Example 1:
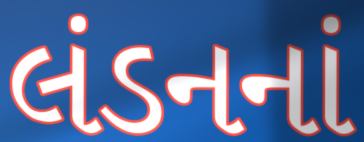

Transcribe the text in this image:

લંડનનાં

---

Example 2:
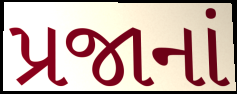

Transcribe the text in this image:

પ્રજાનાં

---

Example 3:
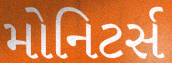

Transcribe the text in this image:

મોનિટર્સ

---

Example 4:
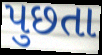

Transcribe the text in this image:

પુછતા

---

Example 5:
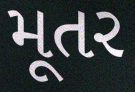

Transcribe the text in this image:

મૂતર